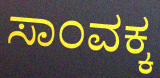
ಸಾಂವಕ್ಕ